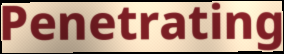
Penetrating